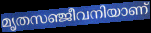
മൃതസഞ്ജീവനിയാണ്